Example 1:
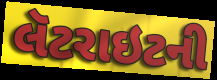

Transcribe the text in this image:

લૅટરાઇટની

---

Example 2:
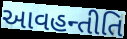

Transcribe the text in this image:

આવહન્તીતિ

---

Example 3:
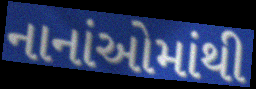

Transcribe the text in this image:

નાનાંઓમાંથી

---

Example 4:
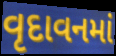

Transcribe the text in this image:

વૃદાવનમાં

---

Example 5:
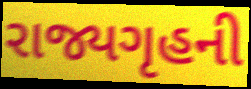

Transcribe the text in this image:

રાજ્યગૃહની